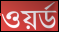
ওয়র্ড